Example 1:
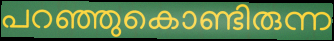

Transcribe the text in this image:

പറഞ്ഞുകൊണ്ടിരുന്ന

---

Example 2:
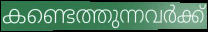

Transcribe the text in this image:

കണ്ടെത്തുന്നവർക്ക്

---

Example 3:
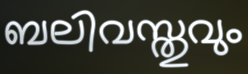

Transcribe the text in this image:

ബലിവസ്തുവും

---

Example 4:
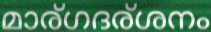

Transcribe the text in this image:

മാര്ഗദര്ശനം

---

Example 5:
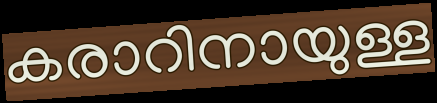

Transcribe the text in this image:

കരാറിനായുള്ള